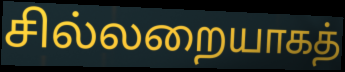
சில்லறையாகத்